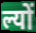
ल्यों